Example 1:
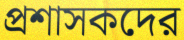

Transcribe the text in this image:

প্রশাসকদের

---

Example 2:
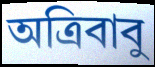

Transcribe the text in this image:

অত্রিবাবু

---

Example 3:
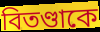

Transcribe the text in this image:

বিতণ্ডাকে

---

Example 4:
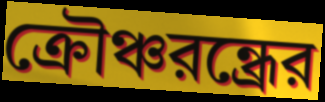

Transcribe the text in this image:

ক্রৌঞ্চরন্ধ্রের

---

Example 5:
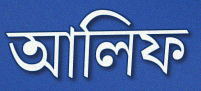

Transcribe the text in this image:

আলিফ